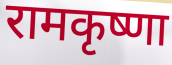
रामकृष्णा